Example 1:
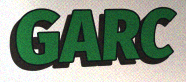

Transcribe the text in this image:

GARC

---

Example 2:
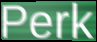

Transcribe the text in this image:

Perk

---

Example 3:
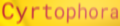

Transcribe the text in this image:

Cyrtophora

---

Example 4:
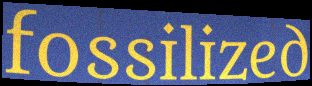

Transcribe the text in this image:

fossilized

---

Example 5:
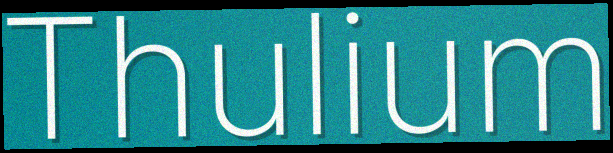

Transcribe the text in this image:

Thulium